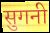
सुगनी